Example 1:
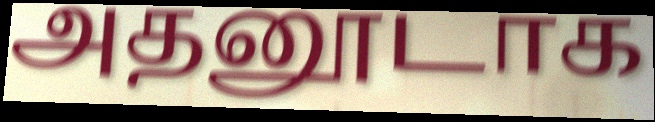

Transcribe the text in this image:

அதனூடாக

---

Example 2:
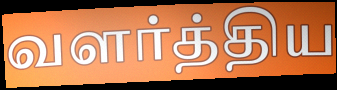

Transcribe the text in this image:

வளர்த்திய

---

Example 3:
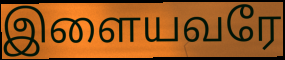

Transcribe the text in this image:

இளையவரே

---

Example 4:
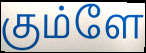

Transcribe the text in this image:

கும்ளே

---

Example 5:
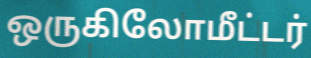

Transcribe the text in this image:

ஒருகிலோமீட்டர்